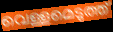
വെള്ളമെടുത്ത്